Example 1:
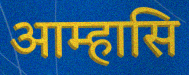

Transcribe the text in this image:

आम्हासि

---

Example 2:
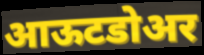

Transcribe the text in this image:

आऊटडोअर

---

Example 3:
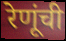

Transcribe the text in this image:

रेणूंची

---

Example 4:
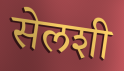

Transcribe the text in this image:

सेलशी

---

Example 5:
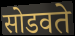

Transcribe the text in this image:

सोडवते